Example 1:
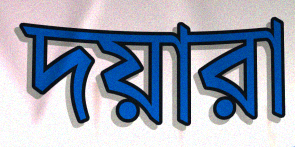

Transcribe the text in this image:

দয়ারা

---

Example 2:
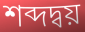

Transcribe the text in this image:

শব্দদ্বয়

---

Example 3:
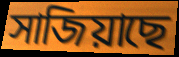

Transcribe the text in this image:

সাজিয়াছে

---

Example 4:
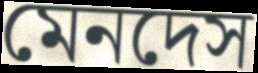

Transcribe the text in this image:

মেনদেস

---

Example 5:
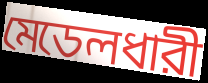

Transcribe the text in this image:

মেডেলধারী